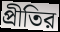
প্রীতির